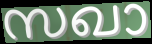
സഖാ